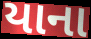
યાના